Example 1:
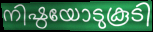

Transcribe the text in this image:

നിഷ്ഠയോടുകൂടി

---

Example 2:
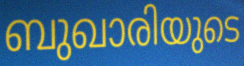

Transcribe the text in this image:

ബുഖാരിയുടെ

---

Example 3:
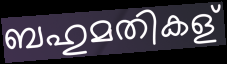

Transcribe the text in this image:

ബഹുമതികള്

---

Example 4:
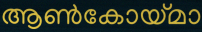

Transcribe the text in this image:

ആൺകോയ്മാ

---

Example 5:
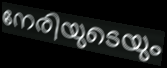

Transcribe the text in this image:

നേരിയുടെയും